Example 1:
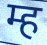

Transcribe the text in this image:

म्ह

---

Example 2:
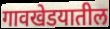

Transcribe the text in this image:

गावखेडयातील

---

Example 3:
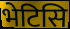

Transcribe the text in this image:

भेटिसि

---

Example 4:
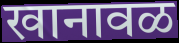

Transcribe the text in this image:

खानावळ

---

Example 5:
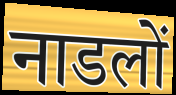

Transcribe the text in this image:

नाडलों